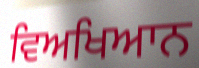
ਵਿਅਖਿਆਨ